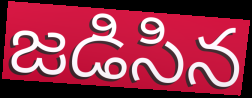
జడిసిన